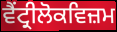
ਵੈਂਟ੍ਰੀਲੋਕਵਿਜ਼ਮ